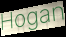
Hogan